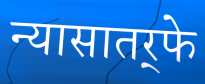
न्यासातर्फे